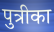
पुत्रीका